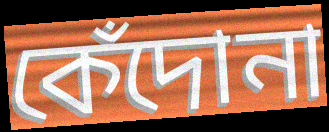
কেঁদোনা